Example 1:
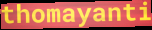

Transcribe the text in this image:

thomayanti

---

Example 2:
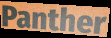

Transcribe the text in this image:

Panther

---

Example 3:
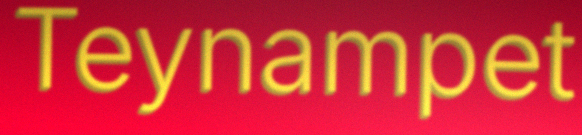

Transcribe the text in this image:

Teynampet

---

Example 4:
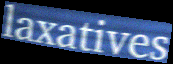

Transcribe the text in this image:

laxatives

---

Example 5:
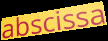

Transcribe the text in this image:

abscissa